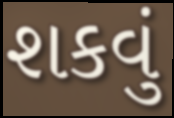
શકવું